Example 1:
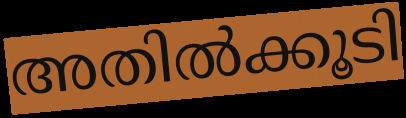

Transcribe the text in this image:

അതിൽക്കൂടി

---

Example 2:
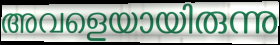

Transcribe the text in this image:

അവളെയായിരുന്നു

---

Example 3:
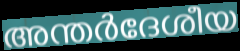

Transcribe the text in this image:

അന്തർദേശീയ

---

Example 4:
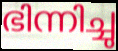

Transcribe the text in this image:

ഭിന്നിച്ചു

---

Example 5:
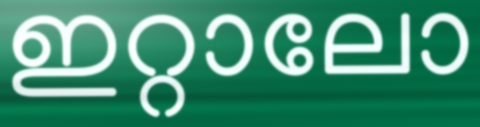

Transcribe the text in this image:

ഇറ്റാലോ